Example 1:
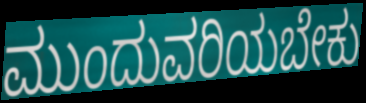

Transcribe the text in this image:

ಮುಂದುವರಿಯಬೇಕು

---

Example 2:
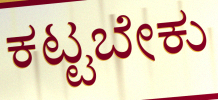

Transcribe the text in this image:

ಕಟ್ಟಬೇಕು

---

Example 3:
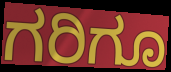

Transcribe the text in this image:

ಗರಿಗೂ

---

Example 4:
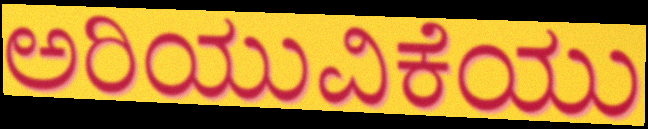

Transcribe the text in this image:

ಅರಿಯುವಿಕೆಯು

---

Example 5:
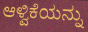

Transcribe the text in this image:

ಆಳ್ವಿಕೆಯನ್ನು